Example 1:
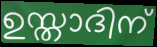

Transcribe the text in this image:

ഉസ്താദിന്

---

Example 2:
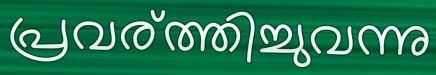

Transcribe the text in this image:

പ്രവര്ത്തിച്ചുവന്നു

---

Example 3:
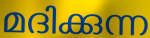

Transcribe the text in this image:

മദിക്കുന്ന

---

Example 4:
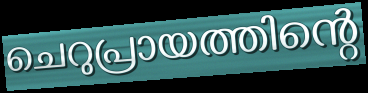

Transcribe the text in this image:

ചെറുപ്രായത്തിന്റെ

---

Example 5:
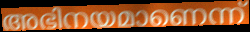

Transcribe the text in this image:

അഭിനയമാണെന്ന്